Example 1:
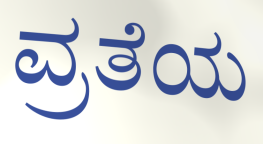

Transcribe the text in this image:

ವ್ರತೆಯ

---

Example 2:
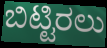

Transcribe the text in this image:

ಬಿಟ್ಟಿರಲು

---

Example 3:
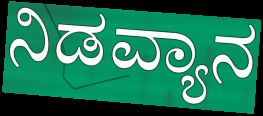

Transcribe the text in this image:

ನಿಡವ್ಯಾನ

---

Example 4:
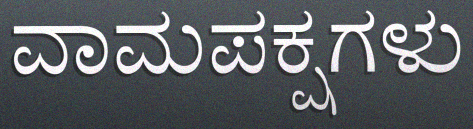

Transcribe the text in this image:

ವಾಮಪಕ್ಷಗಳು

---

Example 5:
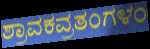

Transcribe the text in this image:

ಶ್ರಾವಕವ್ರತಂಗಳಂ